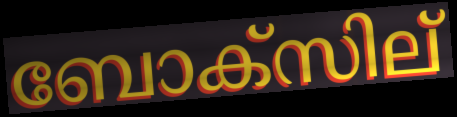
ബോക്സില്